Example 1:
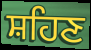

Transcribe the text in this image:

ਸ਼ਹਿਣ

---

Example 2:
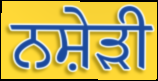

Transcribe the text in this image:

ਨਸ਼ੇੜੀ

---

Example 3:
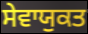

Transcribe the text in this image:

ਸੇਵਾਯੁਕਤ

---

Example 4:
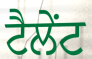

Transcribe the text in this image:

ਟੈਲੇੰਟ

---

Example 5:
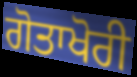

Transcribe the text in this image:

ਗੋਤਾਖੋਰੀ